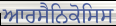
ਆਰਸੈਨਿਕੋਸਿਸ